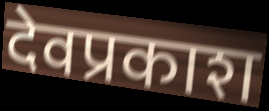
देवप्रकाश